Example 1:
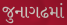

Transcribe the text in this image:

જુનાગઢમાં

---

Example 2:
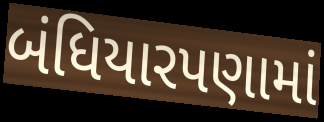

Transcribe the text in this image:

બંધિયારપણામાં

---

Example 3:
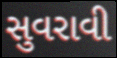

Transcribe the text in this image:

સુવરાવી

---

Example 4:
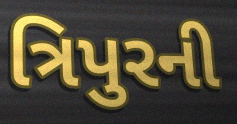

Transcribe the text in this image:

ત્રિપુરની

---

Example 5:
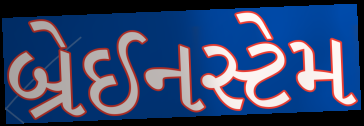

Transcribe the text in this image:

બ્રેઈનસ્ટેમ